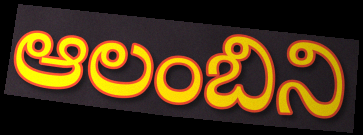
ఆలంబిని